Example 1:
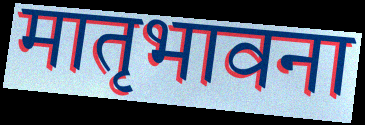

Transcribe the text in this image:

मातृभावना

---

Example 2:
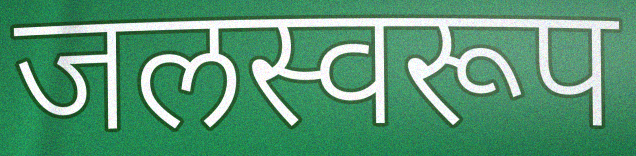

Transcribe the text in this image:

जलस्वरूप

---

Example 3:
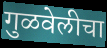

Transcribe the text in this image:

गुळवेलीचा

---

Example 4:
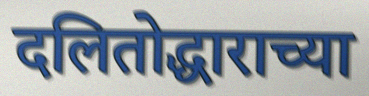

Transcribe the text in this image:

दलितोद्धाराच्या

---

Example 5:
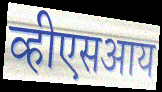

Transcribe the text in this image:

व्हीएसआय